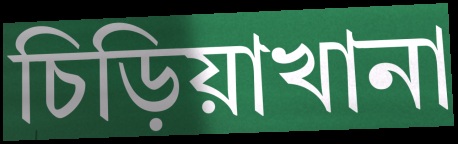
চিড়িয়াখানা